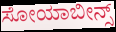
ಸೋಯಾಬೀನ್ಸ್